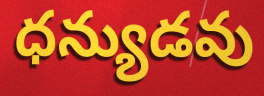
ధన్యుడవు